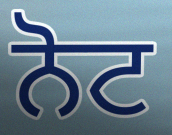
ਨੋਟ